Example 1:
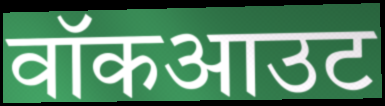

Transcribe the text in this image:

वॉकआउट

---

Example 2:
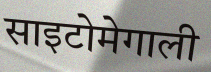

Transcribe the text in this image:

साइटोमेगाली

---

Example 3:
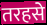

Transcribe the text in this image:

तरहसे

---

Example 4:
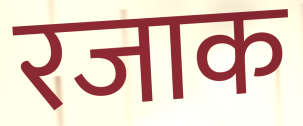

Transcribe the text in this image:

रजाक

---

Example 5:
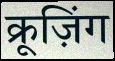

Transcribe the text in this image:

क्रूज़िंग